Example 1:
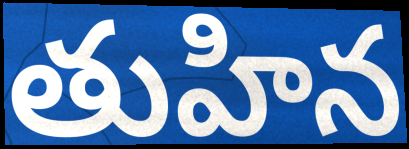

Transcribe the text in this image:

తుహిన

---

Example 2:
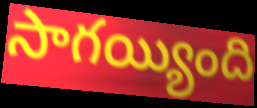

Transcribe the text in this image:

సాగయ్యింది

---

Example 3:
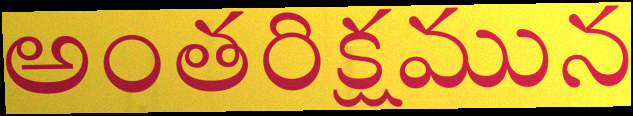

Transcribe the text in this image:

అంతరిక్షమున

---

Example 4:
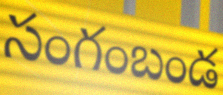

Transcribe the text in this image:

సంగంబండ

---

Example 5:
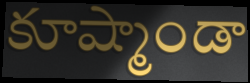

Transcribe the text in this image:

కూష్మాండా